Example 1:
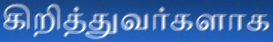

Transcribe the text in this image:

கிறித்துவர்களாக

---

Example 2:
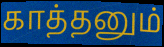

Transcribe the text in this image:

காத்தனும்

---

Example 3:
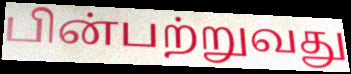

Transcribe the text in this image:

பின்பற்றுவது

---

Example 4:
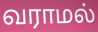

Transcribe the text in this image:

வராமல்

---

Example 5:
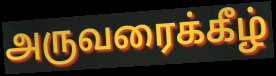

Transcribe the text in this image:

அருவரைக்கீழ்